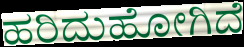
ಹರಿದುಹೋಗಿದೆ